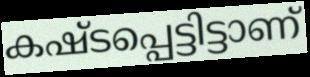
കഷ്ടപ്പെട്ടിട്ടാണ്